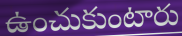
ఉంచుకుంటారు